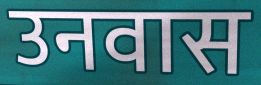
उनवास